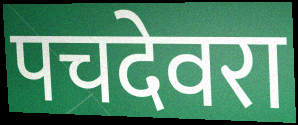
पचदेवरा